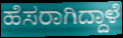
ಹೆಸರಾಗಿದ್ದಾಳೆ